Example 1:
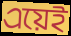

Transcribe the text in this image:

এয়েই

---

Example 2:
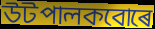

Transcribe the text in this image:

উটপালকবোৰে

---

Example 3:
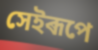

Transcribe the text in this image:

সেইৰূপে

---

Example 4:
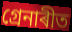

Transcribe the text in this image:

গ্ৰেনাৰীত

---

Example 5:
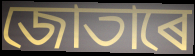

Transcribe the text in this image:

জোতাৰে